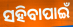
ସହିବାପାଇଁ